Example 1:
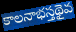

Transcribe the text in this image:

కాలనాభస్తథైవ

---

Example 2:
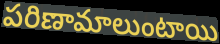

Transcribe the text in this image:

పరిణామాలుంటాయి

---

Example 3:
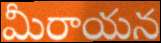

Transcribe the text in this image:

మీరాయన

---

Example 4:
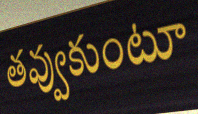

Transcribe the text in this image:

తవ్వుకుంటూ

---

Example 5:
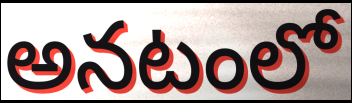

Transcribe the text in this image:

అనటంలో